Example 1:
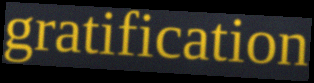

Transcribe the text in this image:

gratification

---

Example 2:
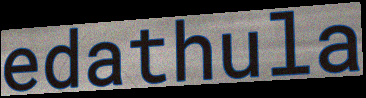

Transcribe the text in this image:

edathula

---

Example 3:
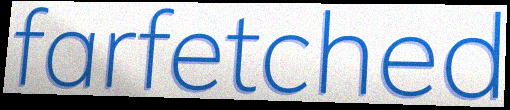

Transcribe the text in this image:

farfetched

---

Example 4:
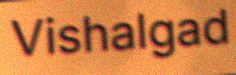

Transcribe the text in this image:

Vishalgad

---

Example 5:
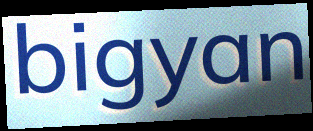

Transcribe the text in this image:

bigyan